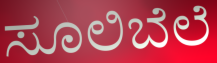
ಸೂಲಿಬೆಲೆ